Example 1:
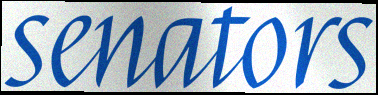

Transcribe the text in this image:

senators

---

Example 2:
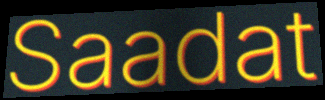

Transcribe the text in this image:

Saadat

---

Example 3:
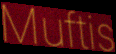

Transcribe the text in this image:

Muftis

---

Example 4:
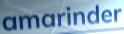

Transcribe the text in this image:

amarinder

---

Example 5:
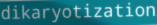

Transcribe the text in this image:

dikaryotization